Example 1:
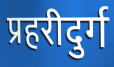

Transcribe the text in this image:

प्रहरीदुर्ग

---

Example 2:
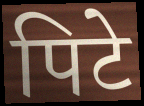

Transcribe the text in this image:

पिटे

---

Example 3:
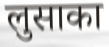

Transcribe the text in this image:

लुसाका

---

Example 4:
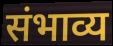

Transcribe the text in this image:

संभाव्य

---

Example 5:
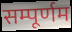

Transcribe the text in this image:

सम्पूर्णम